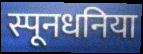
स्पूनधनिया